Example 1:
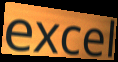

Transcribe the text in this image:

excel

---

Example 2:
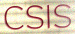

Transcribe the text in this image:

CSIS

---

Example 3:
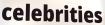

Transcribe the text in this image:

celebrities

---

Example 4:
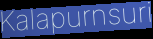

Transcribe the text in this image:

Kalapurnsuri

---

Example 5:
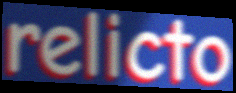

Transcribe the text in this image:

relicto